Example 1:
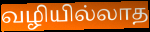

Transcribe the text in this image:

வழியில்லாத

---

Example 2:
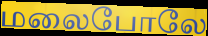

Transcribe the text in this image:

மலைபோலே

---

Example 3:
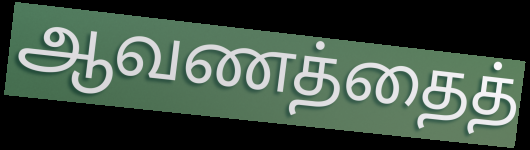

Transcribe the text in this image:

ஆவணத்தைத்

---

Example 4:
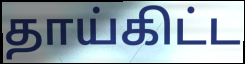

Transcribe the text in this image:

தாய்கிட்ட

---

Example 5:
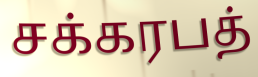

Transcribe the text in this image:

சக்கரபத்